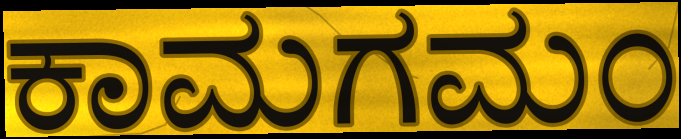
ಕಾಮಗಮಂ